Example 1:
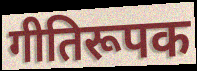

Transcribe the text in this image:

गीतिरूपक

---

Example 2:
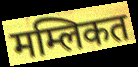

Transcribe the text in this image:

मम्लिकत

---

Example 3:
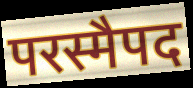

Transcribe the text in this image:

परस्मैपद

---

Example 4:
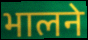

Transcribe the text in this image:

भालने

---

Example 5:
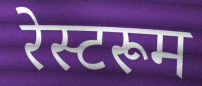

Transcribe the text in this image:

रेस्टरूम